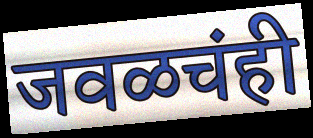
जवळचंही